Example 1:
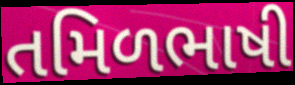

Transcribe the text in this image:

તમિળભાષી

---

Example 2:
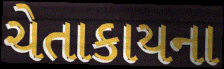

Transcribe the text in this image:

ચેતાકાયના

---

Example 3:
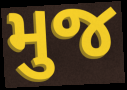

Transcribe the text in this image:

મુજ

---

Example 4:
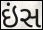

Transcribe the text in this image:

ઇંસ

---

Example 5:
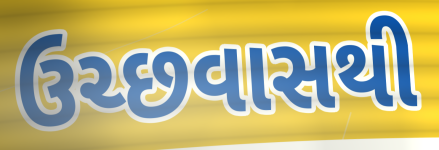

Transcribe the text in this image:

ઉચ્છવાસથી